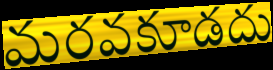
మరవకూడదు